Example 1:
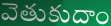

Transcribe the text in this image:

వెతుకుదాం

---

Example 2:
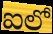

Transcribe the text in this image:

ఐలో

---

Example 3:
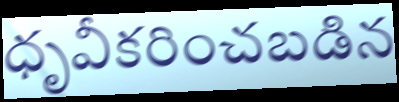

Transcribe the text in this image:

ధృవీకరించబడిన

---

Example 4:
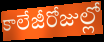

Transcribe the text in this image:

కాలేజీరోజుల్లో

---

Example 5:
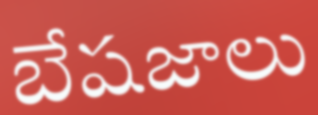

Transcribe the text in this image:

బేషజాలు